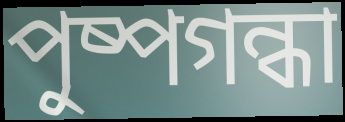
পুষ্পগন্ধা